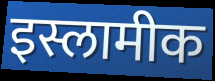
इस्लामीक